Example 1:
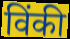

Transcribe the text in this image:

विंकी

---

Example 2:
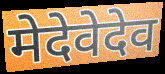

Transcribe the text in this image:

मेदेवेदेव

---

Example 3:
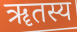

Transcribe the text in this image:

ॠतस्य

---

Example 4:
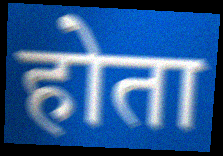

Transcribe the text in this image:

होता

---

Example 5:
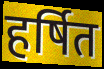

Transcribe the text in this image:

हर्षित